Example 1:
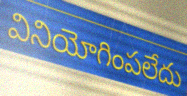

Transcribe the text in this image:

వినియోగింపలేదు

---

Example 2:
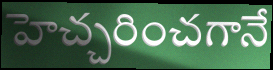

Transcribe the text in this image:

హెచ్చరించగానే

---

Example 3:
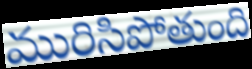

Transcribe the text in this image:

మురిసిపోతుంది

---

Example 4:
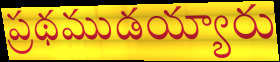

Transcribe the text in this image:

ప్రథముడయ్యారు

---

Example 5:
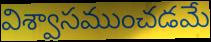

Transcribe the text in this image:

విశ్వాసముంచడమే